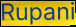
Rupani